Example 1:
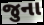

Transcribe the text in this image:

જુના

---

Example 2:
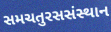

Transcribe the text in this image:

સમચતુરસસંસ્થાન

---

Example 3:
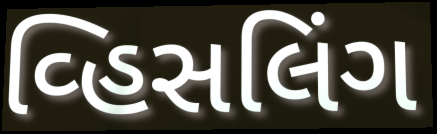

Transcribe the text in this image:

વ્હિસલિંગ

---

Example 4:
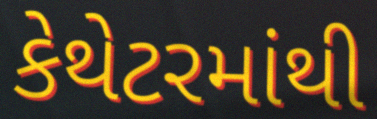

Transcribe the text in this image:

કેથેટરમાંથી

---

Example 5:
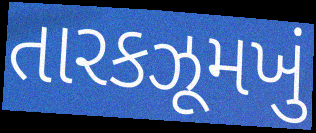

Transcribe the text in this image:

તારકઝૂમખું